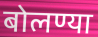
बोलण्या